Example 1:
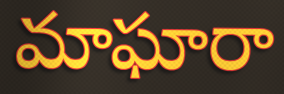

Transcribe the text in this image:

మాఘారా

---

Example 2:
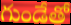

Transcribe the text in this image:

గుండేతో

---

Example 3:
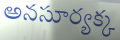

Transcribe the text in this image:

అనసూర్యక్క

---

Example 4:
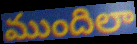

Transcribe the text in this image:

ముందిలా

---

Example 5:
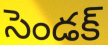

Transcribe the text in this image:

సెండక్